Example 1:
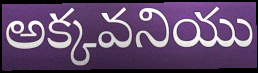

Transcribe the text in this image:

అక్కవనియు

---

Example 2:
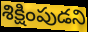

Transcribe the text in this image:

శిక్షింపుడని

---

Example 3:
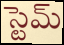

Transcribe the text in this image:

స్టెమ్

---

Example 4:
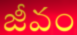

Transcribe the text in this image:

జీవం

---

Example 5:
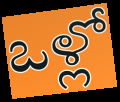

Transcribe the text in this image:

ఒళ్లో